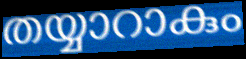
തയ്യാറാകും